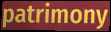
patrimony